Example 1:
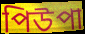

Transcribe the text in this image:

পিউপা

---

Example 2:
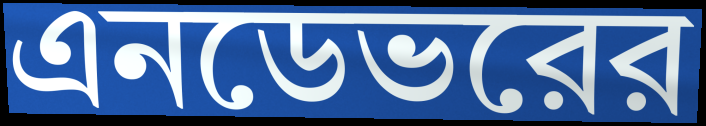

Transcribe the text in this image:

এনডেভরের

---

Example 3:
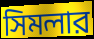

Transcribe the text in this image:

সিমলার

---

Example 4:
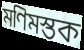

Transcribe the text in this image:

মণিমস্তক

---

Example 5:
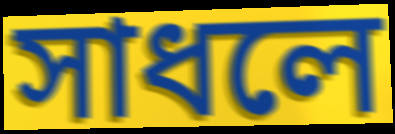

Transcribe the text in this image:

সাধলে